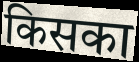
किसका